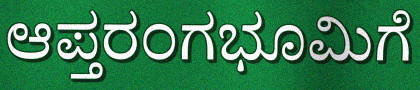
ಆಪ್ತರಂಗಭೂಮಿಗೆ